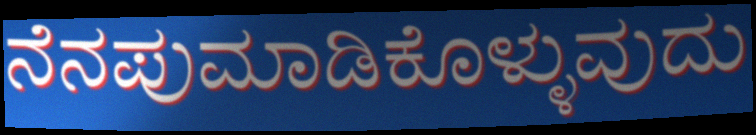
ನೆನಪುಮಾಡಿಕೊಳ್ಳುವುದು